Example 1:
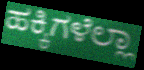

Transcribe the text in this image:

ಹಕ್ಕಿಗಳೆಲ್ಲಾ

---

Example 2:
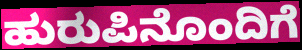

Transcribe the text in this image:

ಹುರುಪಿನೊಂದಿಗೆ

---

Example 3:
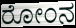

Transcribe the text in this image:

ರೋಂನ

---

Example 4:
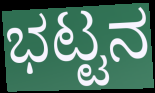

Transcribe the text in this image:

ಭಟ್ಟನ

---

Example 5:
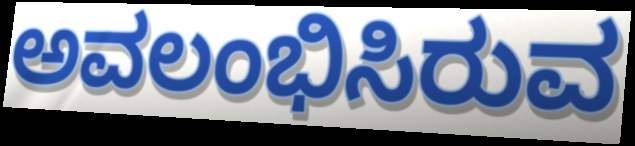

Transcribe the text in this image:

ಅವಲಂಭಿಸಿರುವ